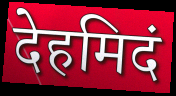
देहमिदं